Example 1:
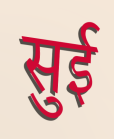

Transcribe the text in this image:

सुई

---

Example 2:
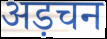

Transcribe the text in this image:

अड़चन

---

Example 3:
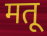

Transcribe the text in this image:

मतू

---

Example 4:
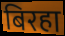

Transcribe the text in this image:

बिरहा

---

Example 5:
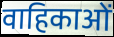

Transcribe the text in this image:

वाहिकाओं